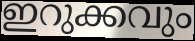
ഇറുക്കവും